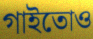
গাইতোও